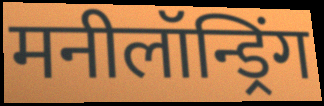
मनीलॉन्ड्रिंग